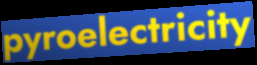
pyroelectricity